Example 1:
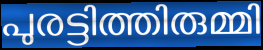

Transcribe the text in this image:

പുരട്ടിത്തിരുമ്മി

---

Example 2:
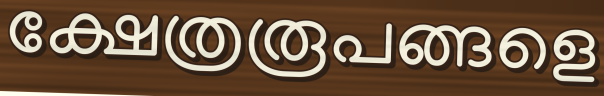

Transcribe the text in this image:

ക്ഷേത്രരൂപങ്ങളെ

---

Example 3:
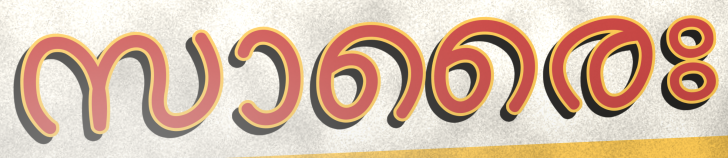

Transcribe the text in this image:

സാരൈഃ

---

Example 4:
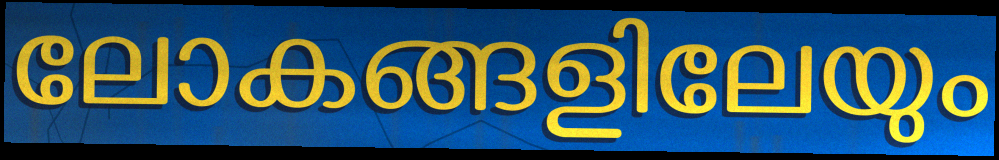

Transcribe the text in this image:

ലോകങ്ങളിലേയും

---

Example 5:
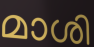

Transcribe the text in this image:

മാശി